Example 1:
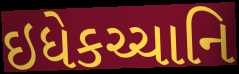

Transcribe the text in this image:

ઇધેકચ્ચાનિ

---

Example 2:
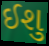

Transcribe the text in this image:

ઈશુ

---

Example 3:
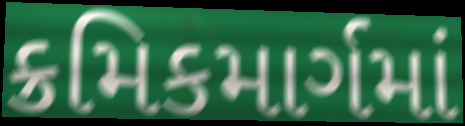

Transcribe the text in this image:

ક્રમિકમાર્ગમાં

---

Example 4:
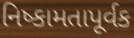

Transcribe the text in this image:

નિષ્કામતાપૂર્વક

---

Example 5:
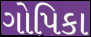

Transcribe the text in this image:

ગોપિકા